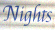
Nights